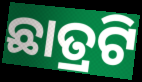
ଛାତ୍ରଟି